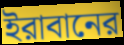
ইরাবানের